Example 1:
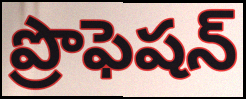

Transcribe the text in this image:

ప్రొఫెషన్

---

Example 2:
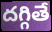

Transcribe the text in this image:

దగ్గితే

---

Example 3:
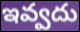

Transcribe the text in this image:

ఇవ్వదు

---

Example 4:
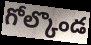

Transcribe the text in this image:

గోల్కొండ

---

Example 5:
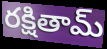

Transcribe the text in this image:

రక్షితామ్